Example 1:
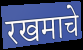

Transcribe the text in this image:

रखमाचे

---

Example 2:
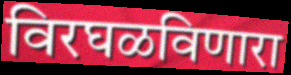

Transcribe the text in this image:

विरघळविणारा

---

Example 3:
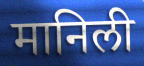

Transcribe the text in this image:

मानिली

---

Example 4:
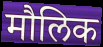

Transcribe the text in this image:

मौलिक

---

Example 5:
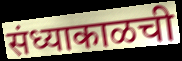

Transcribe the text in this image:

संध्याकाळची